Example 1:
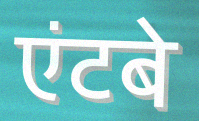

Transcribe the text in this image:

एंटबे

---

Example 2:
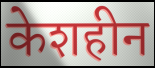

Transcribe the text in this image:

केशहीन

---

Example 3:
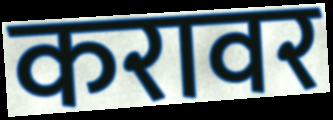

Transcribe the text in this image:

करावर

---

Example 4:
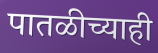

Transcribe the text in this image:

पातळीच्याही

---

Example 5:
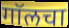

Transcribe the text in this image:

गॉलचा